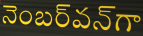
నెంబర్‌వన్‌గా